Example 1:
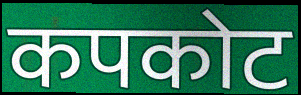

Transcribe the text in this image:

कपकोट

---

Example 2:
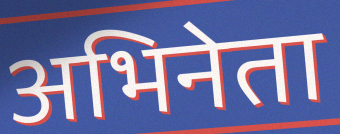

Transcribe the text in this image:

अभिनेता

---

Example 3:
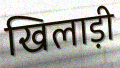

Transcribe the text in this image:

खिलाड़ी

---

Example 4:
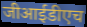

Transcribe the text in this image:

जीआईडीएच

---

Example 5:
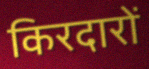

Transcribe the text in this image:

किरदारों